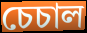
চেচাল